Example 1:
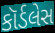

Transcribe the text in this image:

કૉર્ડલેસ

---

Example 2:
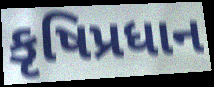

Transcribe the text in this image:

કૃષિપ્રધાન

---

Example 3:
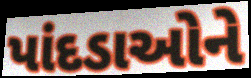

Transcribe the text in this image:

પાંદડાઓને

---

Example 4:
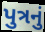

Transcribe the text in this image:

પુત્રનું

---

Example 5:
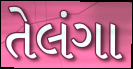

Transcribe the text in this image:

તેલંગા